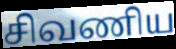
சிவணிய